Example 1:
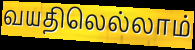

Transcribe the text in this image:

வயதிலெல்லாம்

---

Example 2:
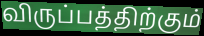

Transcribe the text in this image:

விருப்பத்திற்கும்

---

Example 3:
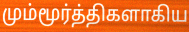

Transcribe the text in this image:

மும்மூர்த்திகளாகிய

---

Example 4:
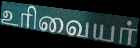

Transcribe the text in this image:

உரிவையர்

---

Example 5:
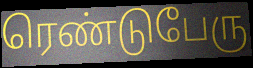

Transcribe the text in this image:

ரெண்டுபேரு